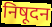
निषूदन